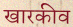
खारकीव